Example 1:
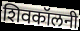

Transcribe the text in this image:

शिवकॉलनी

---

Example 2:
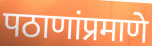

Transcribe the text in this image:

पठाणांप्रमाणे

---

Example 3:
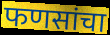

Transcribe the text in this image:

फणसांचा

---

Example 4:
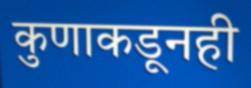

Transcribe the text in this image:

कुणाकडूनही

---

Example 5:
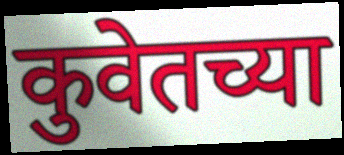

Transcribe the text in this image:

कुवेतच्या